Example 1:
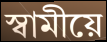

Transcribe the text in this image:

স্বামীয়ে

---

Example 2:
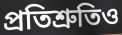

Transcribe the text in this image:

প্ৰতিশ্ৰুতিও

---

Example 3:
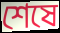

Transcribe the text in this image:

শেষে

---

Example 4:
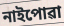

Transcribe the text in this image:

নাইপোৱা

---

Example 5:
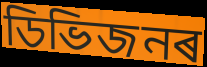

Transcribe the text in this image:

ডিভিজনৰ